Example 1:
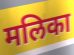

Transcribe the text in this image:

मलिका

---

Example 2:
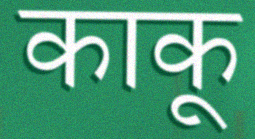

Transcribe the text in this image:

काकू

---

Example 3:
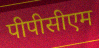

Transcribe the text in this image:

पीपीसीएम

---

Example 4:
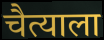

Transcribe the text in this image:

चैत्याला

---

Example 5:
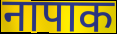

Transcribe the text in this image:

नापाक